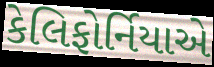
કેલિફોર્નિયાએ